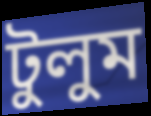
টুলুম